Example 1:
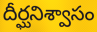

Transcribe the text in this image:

దీర్ఘనిశ్వాసం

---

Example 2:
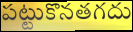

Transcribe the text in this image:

పట్టుకొనతగదు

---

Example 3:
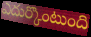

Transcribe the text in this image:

ఎదుర్కొంటుంది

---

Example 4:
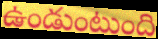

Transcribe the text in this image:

ఉండుంటుంది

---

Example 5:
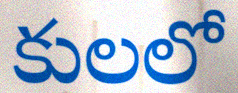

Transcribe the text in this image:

కులలో